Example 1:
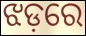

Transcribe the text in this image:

ଝଡ଼ରେ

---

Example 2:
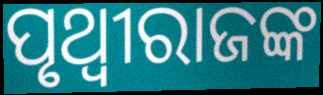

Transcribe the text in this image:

ପୃଥ୍ୱୀରାଜଙ୍କ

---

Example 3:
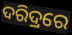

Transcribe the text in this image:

ଦରିଦ୍ରରେ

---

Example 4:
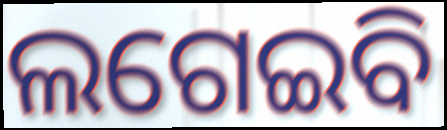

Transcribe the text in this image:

ଲଗେଇବି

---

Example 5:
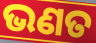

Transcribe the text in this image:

ଭଣତ